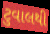
ટુવાલથી